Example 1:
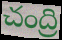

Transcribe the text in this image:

చంద్రి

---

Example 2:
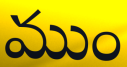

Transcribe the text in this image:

ముం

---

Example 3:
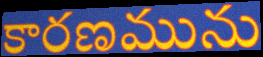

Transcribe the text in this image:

కారణమును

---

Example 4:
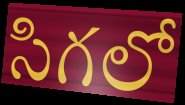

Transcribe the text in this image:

సిగలో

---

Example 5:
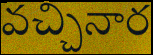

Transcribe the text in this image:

వచ్చినార